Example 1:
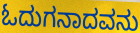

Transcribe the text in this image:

ಓದುಗನಾದವನು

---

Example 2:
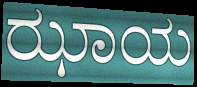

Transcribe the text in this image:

ಝಾಯ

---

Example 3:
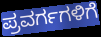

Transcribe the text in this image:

ಪ್ರವರ್ಗಗಳಿಗೆ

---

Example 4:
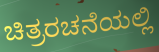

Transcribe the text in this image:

ಚಿತ್ರರಚನೆಯಲ್ಲಿ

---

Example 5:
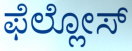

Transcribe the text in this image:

ಫೆಲ್ಲೋಸ್